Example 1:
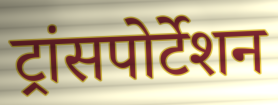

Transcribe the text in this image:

ट्रांसपोर्टेशन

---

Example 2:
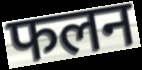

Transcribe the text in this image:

फलन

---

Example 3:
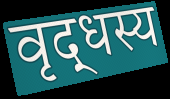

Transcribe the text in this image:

वृद्धस्य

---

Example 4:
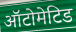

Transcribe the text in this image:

ऑटोमेटिड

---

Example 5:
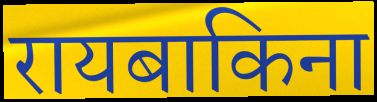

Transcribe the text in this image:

रायबाकिना